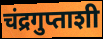
चंद्रगुप्ताशी